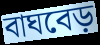
বাঘবেড়